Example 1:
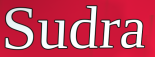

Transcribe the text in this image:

Sudra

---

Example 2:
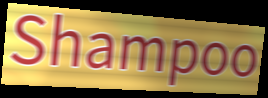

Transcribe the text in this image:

Shampoo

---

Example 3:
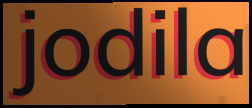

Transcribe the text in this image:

jodila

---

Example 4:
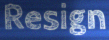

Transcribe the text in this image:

Resign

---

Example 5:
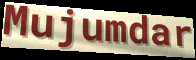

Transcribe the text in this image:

Mujumdar